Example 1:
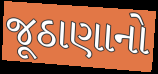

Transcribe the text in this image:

જૂઠાણાનો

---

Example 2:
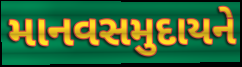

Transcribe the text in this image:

માનવસમુદાયને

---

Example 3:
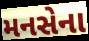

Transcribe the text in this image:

મનસેના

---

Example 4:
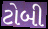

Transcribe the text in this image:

ટોબી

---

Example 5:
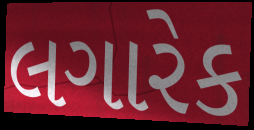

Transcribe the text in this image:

લગારેક